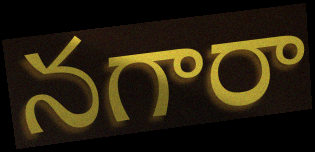
నగారా